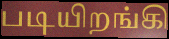
படியிறங்கி